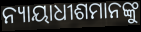
ନ୍ୟାୟାଧୀଶମାନଙ୍କୁ